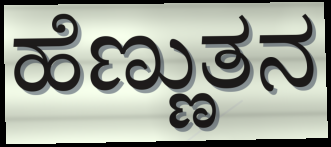
ಹೆಣ್ಣುತನ